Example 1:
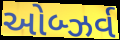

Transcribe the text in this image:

ઓબ્ઝર્વ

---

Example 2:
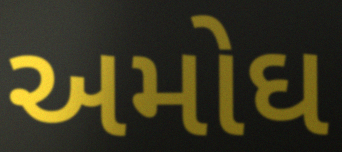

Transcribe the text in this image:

અમોઘ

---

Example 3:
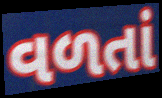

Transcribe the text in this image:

વળતાં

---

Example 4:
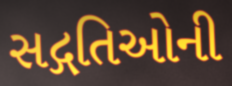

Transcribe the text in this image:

સદ્ગતિઓની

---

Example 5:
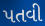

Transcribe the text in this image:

પતવી